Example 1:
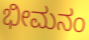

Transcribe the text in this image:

ಭೀಮನಂ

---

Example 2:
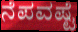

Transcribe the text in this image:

ನೆಪವಷ್ಟೆ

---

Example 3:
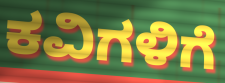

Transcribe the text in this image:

ಕವಿಗಳಿಗೆ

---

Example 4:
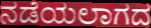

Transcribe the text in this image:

ನಡೆಯಲಾಗದ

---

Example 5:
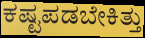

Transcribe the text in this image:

ಕಷ್ಟಪಡಬೇಕಿತ್ತು